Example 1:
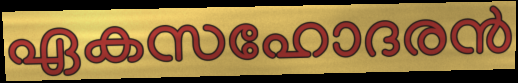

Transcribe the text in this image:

ഏകസഹോദരൻ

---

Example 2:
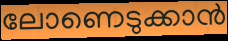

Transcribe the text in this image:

ലോണെടുക്കാൻ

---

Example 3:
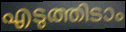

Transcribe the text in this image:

എടുത്തിടാം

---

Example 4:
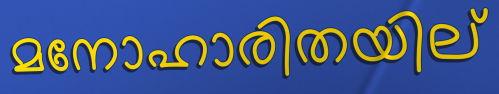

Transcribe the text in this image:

മനോഹാരിതയില്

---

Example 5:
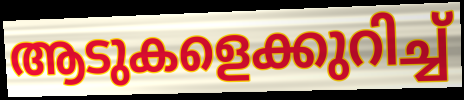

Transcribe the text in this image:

ആടുകളെക്കുറിച്ച്